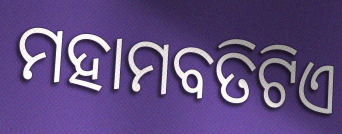
ମହାମବତିଟିଏ